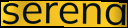
serena